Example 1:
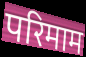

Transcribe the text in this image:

परिमाम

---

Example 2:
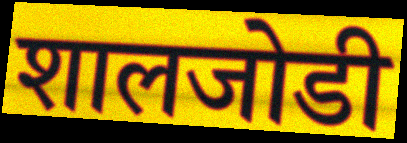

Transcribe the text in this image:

शालजोडी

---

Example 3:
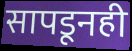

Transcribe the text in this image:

सापडूनही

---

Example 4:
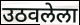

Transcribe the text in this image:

उठवलेला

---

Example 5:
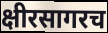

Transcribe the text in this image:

क्षीरसागरच